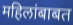
महिलांबाबत